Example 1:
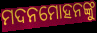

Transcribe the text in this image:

ମଦନମୋହନଙ୍କୁ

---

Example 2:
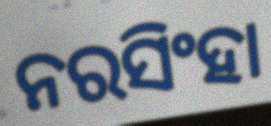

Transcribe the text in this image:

ନରସିଂହା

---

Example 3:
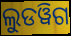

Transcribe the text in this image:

ଲୁଡୱିଗ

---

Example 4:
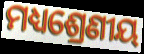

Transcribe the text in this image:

ମଧ୍ୟଶ୍ରେଣୀୟ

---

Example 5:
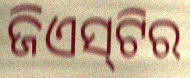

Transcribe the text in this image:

ଜିଏସ୍‌ଟିର